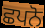
ਛਪਨੋ